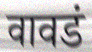
वावडं